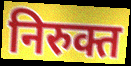
निरुक्त